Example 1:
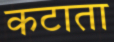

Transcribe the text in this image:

कटाता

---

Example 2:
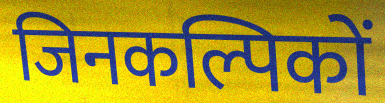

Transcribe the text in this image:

जिनकल्पिकों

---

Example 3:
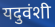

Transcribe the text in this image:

यदुवंशी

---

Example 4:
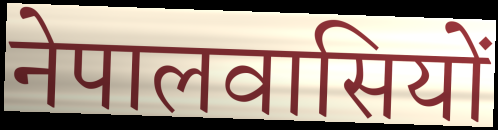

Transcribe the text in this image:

नेपालवासियों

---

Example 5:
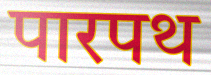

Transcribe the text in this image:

पारपथ